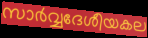
സാർവ്വദേശീയകല